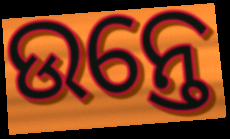
ଉନ୍ତେ